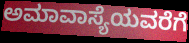
ಅಮಾವಾಸ್ಯೆಯವರೆಗೆ